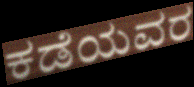
ಕಡೆಯವರ